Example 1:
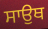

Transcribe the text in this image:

ਸਾਉਥ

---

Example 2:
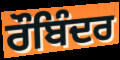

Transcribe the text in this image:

ਰੌਬਿੰਦਰ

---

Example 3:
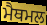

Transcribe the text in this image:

ਮੈਥਮਲ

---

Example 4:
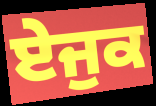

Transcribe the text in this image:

ਏਜੁਕ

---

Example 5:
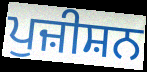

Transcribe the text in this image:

ਪੁਜ਼ੀਸ਼ਨ